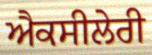
ਐਕਸੀਲੇਰੀ